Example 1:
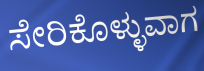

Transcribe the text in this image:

ಸೇರಿಕೊಳ್ಳುವಾಗ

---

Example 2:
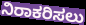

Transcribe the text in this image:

ನಿರಾಕರಿಸಲು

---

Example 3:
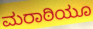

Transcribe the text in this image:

ಮರಾಠಿಯೂ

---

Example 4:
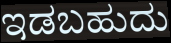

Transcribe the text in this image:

ಇಡಬಹುದು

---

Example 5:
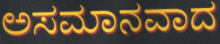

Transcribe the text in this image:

ಅಸಮಾನವಾದ